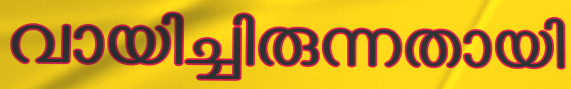
വായിച്ചിരുന്നതായി